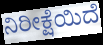
ನಿರೀಕ್ಷೆಯಿದೆ